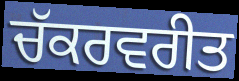
ਚੱਕਰਵਰੀਤ